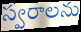
స్వరాలను